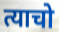
त्याचो